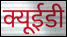
क्यूईडी